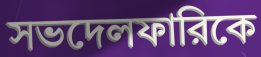
সভদেলফারিকে